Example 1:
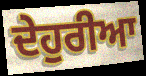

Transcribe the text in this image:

ਦੇਹੁਰੀਆ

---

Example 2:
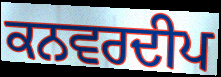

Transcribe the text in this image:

ਕਨਵਰਦੀਪ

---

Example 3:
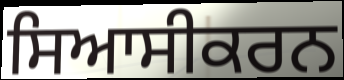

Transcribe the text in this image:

ਸਿਆਸੀਕਰਨ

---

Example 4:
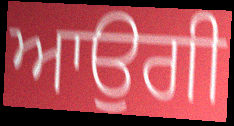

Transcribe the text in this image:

ਆਉਗੀ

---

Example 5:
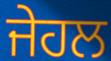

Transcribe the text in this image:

ਜੇਹਲ